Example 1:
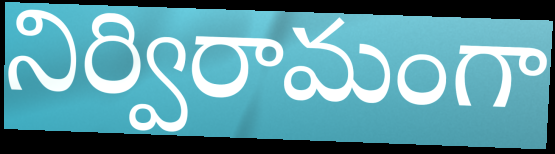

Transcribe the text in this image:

నిర్విరామంగా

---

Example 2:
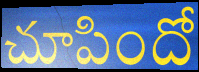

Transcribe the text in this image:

చూపిందో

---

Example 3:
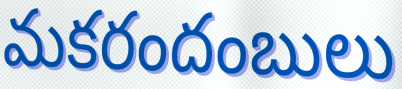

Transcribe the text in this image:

మకరందంబులు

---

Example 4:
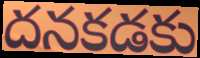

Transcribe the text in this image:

దనకడకు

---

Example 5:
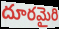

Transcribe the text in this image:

దూరమైరి